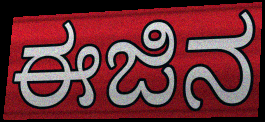
ಈಜಿನ